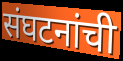
संघटनांची